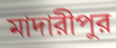
মাদারীপুর